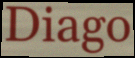
Diago